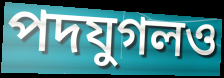
পদযুগলও